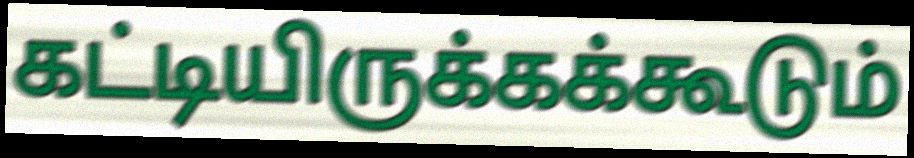
கட்டியிருக்கக்கூடும்